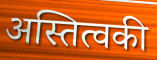
अस्तित्वकी